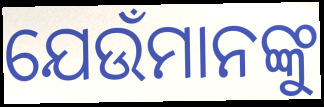
ଯେଉଁମାନଙ୍କୁ